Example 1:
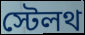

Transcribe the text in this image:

স্টেলথ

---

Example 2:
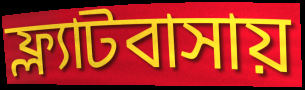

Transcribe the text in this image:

ফ্ল্যাটবাসায়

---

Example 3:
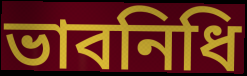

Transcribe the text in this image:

ভাবনিধি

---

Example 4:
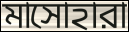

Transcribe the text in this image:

মাসোহারা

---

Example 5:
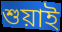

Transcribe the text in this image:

শুয়াই